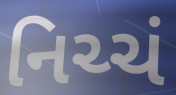
નિચ્ચં